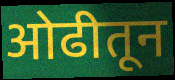
ओढीतून